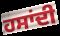
ਹਸਾਂਦੀ